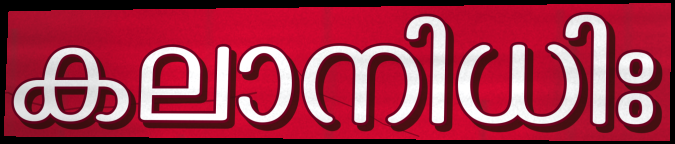
കലാനിധിഃ